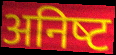
अनिष्‍ट